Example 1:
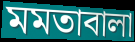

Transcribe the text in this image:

মমতাবালা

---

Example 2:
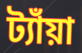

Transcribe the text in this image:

ট্যাঁয়া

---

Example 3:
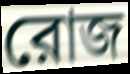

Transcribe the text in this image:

রোজ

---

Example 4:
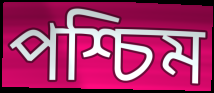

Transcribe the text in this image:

পশ্চিম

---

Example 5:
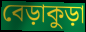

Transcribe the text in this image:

বেড়াকুড়া